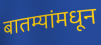
बातम्यांमधून